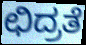
ಛಿದ್ರತೆ